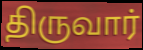
திருவார்